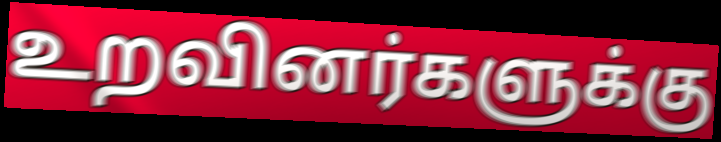
உறவினர்களுக்கு